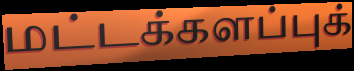
மட்டக்களப்புக்